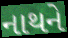
નાથને